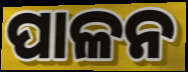
ପାଳନ